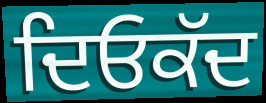
ਦਿਓਕੱਦ